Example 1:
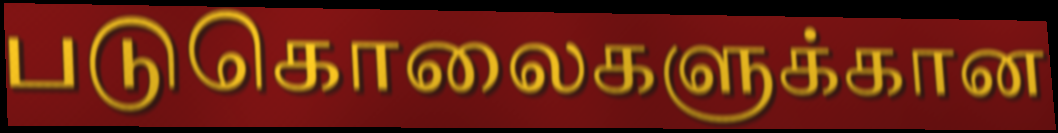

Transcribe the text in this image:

படுகொலைகளுக்கான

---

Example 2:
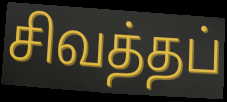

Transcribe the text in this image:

சிவத்தப்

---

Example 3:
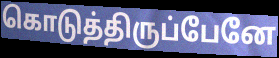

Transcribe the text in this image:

கொடுத்திருப்பேனே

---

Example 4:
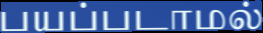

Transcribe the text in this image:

பயப்படாமல்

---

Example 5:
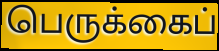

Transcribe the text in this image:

பெருக்கைப்